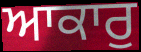
ਆਕਾਰੁ